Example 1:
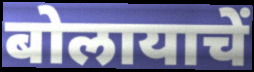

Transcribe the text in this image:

बोलायाचें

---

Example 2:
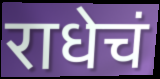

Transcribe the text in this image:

राधेचं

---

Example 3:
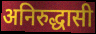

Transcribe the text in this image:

अनिरुद्धासी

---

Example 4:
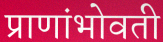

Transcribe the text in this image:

प्राणांभोवती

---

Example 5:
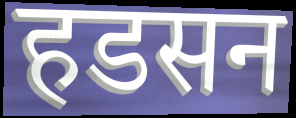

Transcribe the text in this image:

हडसन